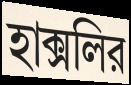
হাক্সলির